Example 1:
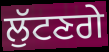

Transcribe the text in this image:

ਲੁੱਟਣਗੇ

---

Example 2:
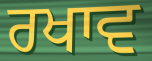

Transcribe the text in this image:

ਰਖਾਵ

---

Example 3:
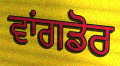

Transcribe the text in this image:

ਵਾਂਗਡੋਰ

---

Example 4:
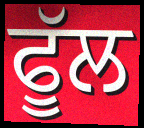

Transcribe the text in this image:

ਫੂੱਲ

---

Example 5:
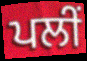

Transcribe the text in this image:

ਪਲੀਂ